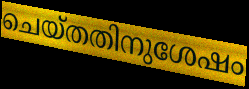
ചെയ്തതിനുശേഷം